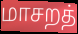
மாசறத்